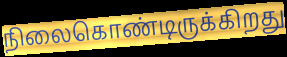
நிலைகொண்டிருக்கிறது